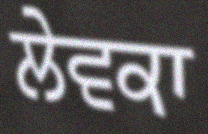
ਲੇਵਕਾ